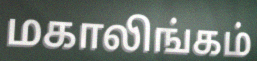
மகாலிங்கம்